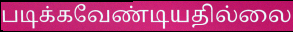
படிக்கவேண்டியதில்லை